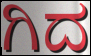
ಗಿದ